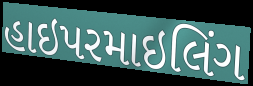
હાઇપરમાઇલિંગ